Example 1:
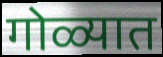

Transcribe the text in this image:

गोळ्यात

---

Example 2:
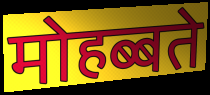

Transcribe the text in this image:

मोहब्बते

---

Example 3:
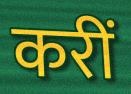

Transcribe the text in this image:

करीं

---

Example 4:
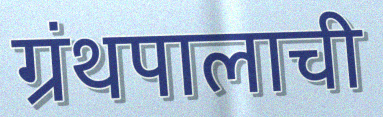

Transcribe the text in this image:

ग्रंथपालाची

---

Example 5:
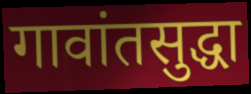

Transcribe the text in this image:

गावांतसुद्धा